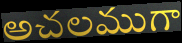
అచలముగా